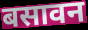
बसावन